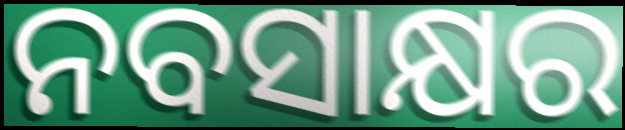
ନବସାକ୍ଷର